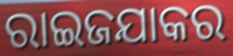
ରାଇଜଯାକର